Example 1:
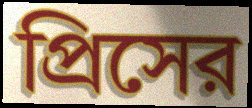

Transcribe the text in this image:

প্রিসের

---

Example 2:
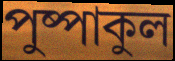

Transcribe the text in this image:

পুষ্পাকুল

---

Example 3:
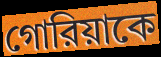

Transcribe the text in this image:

গোরিয়াকে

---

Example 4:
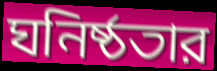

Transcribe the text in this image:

ঘনিষ্ঠতার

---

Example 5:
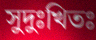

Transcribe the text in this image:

সুদুঃখিতঃ